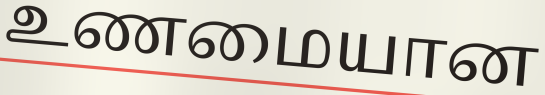
உணமையான